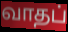
வாதப்